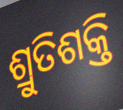
ଶ୍ରୁତିଶକ୍ତି